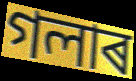
গলাৰ